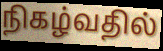
நிகழ்வதில்